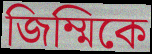
জিম্মিকে